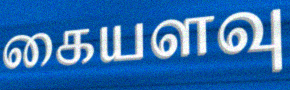
கையளவு